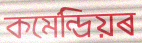
কৰ্মেন্দ্ৰিয়ৰ